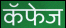
कॅफेज